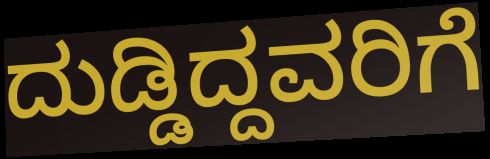
ದುಡ್ಡಿದ್ದವರಿಗೆ